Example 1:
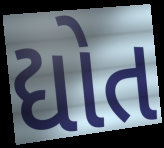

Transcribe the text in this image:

દ્યોત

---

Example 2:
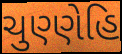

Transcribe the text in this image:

ચુણ્ણેહિ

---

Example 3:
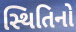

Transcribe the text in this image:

સ્થિતિનો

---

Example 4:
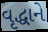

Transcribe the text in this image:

વૃદ્ધાને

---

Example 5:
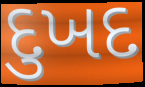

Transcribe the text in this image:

દુખદ